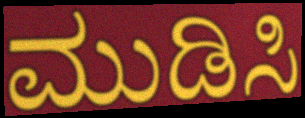
ಮುಡಿಸಿ